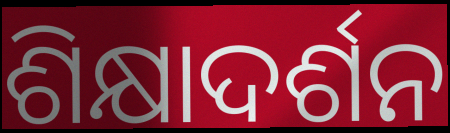
ଶିକ୍ଷାଦର୍ଶନ